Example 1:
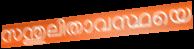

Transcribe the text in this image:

സന്തുലിതാവസ്ഥയെ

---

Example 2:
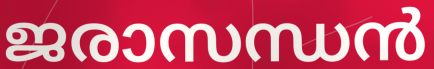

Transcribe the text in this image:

ജരാസന്ധൻ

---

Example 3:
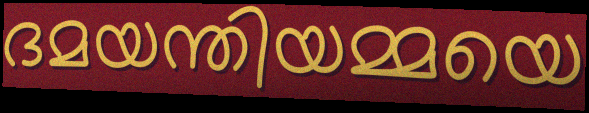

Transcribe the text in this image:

ദമയന്തിയമ്മയെ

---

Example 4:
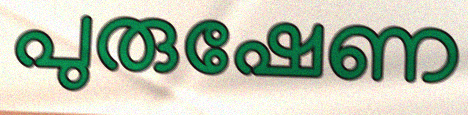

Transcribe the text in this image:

പുരുഷേണ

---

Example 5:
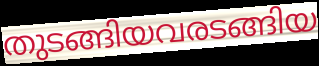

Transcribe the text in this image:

തുടങ്ങിയവരടങ്ങിയ